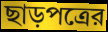
ছাড়পত্রের